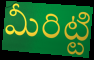
మీరిట్టి